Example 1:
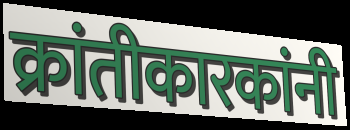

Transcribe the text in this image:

क्रांतीकारकांनी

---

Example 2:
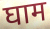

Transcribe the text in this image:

घाम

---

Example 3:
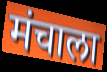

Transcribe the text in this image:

मंचाला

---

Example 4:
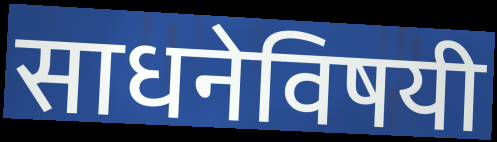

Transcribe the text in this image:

साधनेविषयी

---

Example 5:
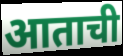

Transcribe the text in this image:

आताची